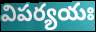
విపర్యయః